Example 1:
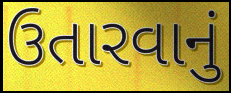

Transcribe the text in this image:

ઉતારવાનું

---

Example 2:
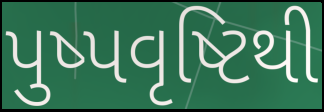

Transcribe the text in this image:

પુષ્પવૃષ્ટિથી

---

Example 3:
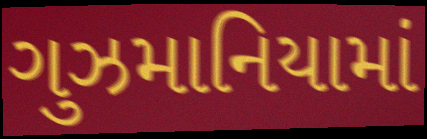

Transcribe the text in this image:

ગુઝમાનિયામાં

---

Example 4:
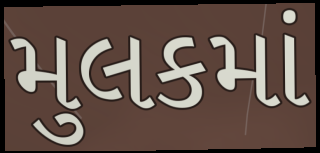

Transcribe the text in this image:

મુલકમાં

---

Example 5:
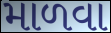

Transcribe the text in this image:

માળવા